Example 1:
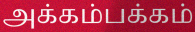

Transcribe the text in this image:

அக்கம்பக்கம்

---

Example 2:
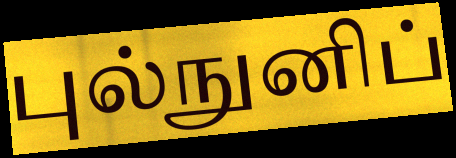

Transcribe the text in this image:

புல்நுனிப்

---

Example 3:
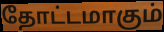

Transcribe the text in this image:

தோட்டமாகும்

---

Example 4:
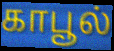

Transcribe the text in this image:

காபூல்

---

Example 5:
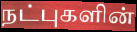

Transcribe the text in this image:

நட்புகளின்